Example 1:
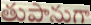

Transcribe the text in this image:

తుపానుగా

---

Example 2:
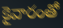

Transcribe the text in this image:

కైవారంతో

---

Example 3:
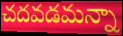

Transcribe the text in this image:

చదవడమన్నా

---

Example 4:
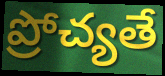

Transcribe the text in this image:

ప్రోచ్యతే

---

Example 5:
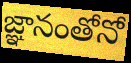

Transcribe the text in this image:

జ్ఞానంతోనో